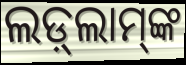
ଲଡ଼୍‍ଲାମ୍‍ଙ୍କ